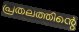
പ്രതലത്തിന്റെ